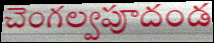
చెంగల్వపూదండ